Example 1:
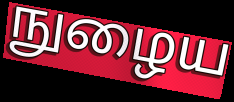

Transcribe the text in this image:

நுழைய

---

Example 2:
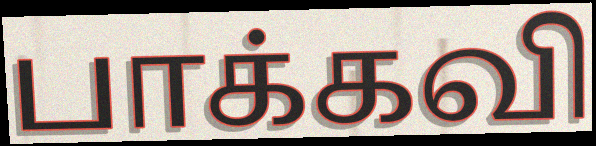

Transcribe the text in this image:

பாக்கவி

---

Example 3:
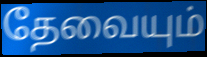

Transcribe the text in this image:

தேவையும்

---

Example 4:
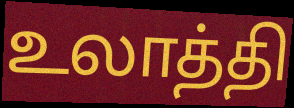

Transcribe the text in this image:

உலாத்தி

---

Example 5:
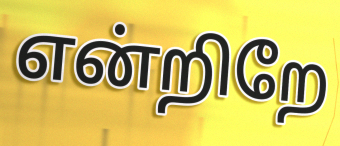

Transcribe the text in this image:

என்றிறே